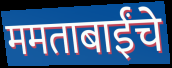
ममताबाईंचे